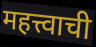
महत्त्वाची